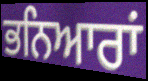
ਭਨਿਆਰਾਂ